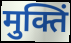
मुक्तिं